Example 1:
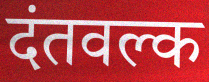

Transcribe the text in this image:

दंतवल्क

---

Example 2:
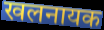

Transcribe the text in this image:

खलनायक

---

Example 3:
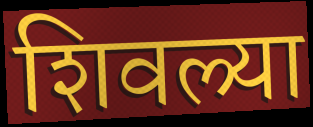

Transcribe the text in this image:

शिवल्या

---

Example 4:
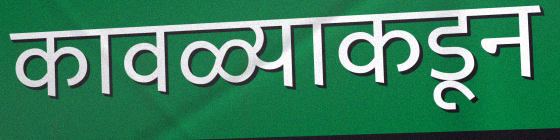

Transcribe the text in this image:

कावळ्याकडून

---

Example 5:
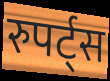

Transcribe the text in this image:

रुपर्ट्स